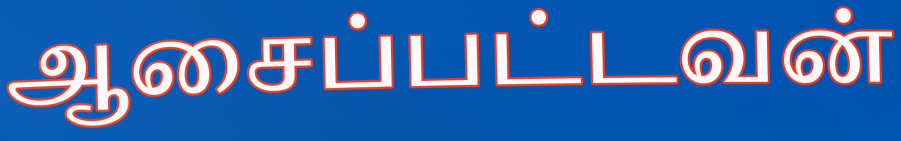
ஆசைப்பட்டவன்